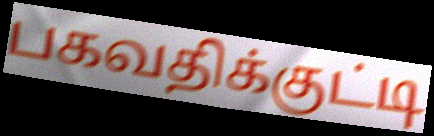
பகவதிக்குட்டி